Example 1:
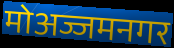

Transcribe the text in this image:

मोअज्जमनगर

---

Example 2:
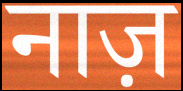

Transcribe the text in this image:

नाज़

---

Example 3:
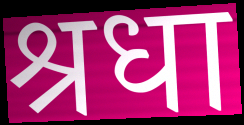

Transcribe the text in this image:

श्रधा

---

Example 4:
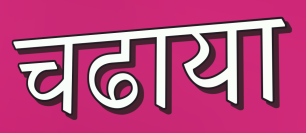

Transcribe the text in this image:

चढाया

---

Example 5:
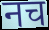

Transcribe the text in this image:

नच